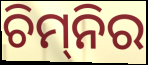
ଚିମ୍‌ନିର